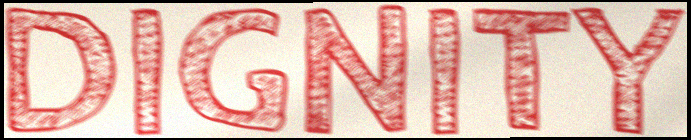
DIGNITY